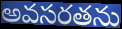
అవసరతను